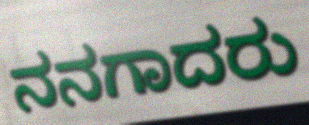
ನನಗಾದರು